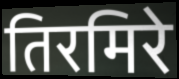
तिरमिरे